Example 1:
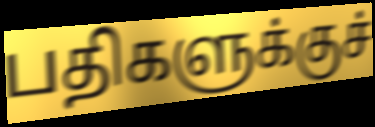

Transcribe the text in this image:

பதிகளுக்குச்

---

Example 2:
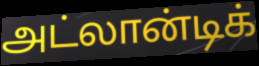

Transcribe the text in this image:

அட்லான்டிக்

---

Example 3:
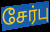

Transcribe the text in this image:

சேர்பு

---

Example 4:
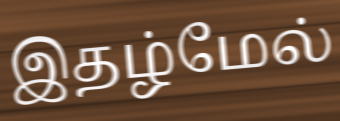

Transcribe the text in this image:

இதழ்மேல்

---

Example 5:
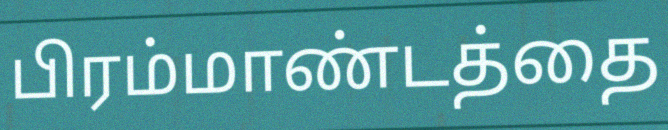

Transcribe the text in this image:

பிரம்மாண்டத்தை